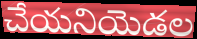
చేయనియెడల